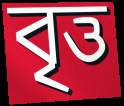
বৃত্ত